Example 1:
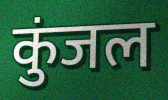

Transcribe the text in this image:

कुंजल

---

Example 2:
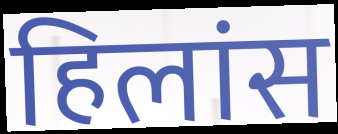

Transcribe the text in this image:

हिलांस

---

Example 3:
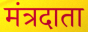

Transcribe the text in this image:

मंत्रदाता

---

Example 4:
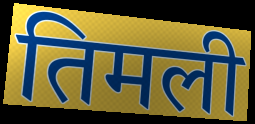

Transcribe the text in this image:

तिमली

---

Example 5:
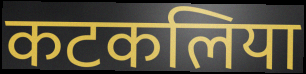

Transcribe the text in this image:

कटकलिया